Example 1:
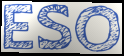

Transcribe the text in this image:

ESO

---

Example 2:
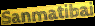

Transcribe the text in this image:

Sanmatibai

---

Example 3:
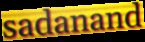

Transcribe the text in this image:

sadanand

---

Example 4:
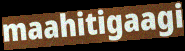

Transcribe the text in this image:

maahitigaagi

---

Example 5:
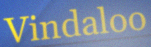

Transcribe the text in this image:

Vindaloo